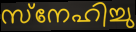
സ്‌നേഹിച്ചു